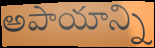
అపాయాన్ని